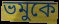
ভমুকে